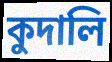
কুদালি